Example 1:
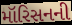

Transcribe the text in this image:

મૉરિસનની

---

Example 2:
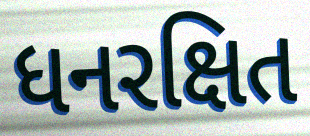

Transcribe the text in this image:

ધનરક્ષિત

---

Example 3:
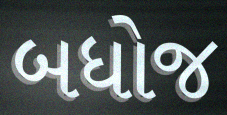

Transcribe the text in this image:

બધોજ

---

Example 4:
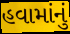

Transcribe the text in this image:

હવામાંનું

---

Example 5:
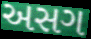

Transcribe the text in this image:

અસગ